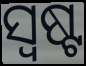
ସ୍ୱଷ୍ଟ